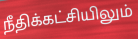
நீதிக்கட்சியிலும்